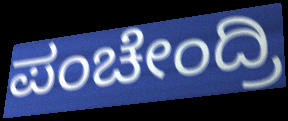
ಪಂಚೇಂದ್ರಿ